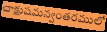
చాక్షుషమన్వంతరములో